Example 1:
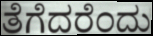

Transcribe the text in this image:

ತೆಗೆದರೆಂದು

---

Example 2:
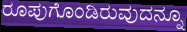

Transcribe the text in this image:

ರೂಪುಗೊಂಡಿರುವುದನ್ನೂ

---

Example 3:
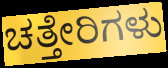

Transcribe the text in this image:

ಚತ್ತೇರಿಗಳು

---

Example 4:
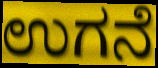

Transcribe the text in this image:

ಉಗನೆ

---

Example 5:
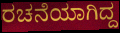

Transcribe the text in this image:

ರಚನೆಯಾಗಿದ್ದ